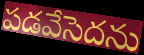
పడవేసెదను